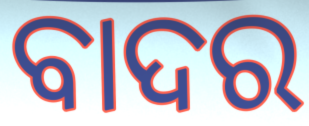
ବାଦର